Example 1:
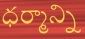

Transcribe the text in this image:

ధర్మాన్ని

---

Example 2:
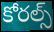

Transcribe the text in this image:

కోరల్స్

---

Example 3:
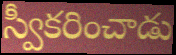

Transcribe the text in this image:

స్వీకరించాడు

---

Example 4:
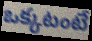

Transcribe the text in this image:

ఒక్కటంటే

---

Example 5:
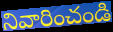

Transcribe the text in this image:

నివారించండి